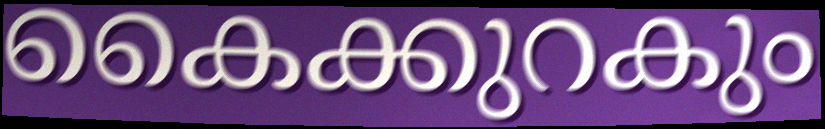
കൈക്കുറകും